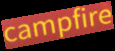
campfire